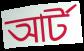
আর্ট